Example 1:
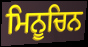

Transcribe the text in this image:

ਮਿਨੂਚਿਨ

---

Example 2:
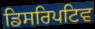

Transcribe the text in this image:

ਡਿਸਰਿਪਟਿਵ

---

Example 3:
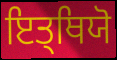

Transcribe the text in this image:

ਇਤ੍ਥਿਯੋ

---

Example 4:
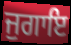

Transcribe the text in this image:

ਜੁਗਾਇ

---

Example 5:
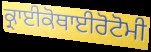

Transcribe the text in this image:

ਕ੍ਰਾਈਕੋਥਾਈਰੋਟੋਮੀ